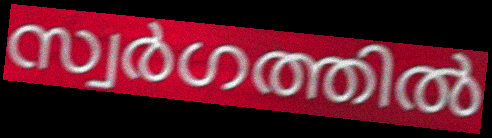
സ്വർഗത്തിൽ